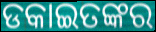
ଡକାଇତଙ୍କର